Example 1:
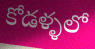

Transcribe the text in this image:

కోడళ్ళలో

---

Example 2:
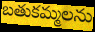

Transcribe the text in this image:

బతుకమ్మలను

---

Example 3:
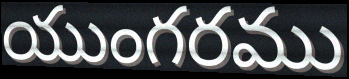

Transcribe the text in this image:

యుంగరము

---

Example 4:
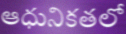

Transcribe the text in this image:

ఆధునికతలో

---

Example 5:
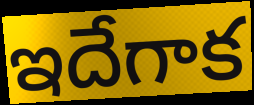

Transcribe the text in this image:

ఇదేగాక